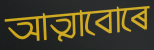
আত্মাবোৰে